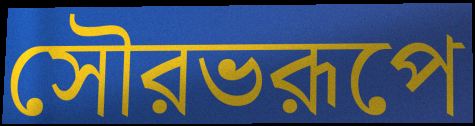
সৌরভরূপে